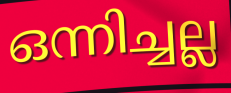
ഒന്നിച്ചല്ല